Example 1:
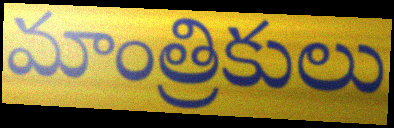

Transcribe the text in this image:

మాంత్రికులు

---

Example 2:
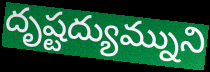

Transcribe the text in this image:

దృష్టద్యుమ్నుని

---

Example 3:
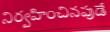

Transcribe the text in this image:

నిర్వహించినపుడే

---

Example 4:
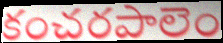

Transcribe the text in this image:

కంచరపాలెం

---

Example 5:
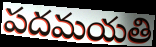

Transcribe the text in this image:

పదమయతి